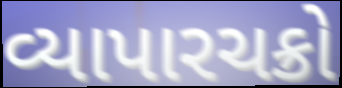
વ્યાપારચક્રો